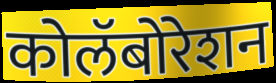
कोलॅबोरेशन